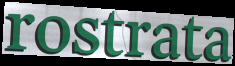
rostrata